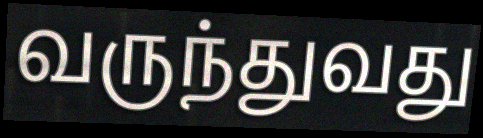
வருந்துவது